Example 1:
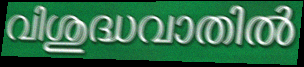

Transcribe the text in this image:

വിശുദ്ധവാതിൽ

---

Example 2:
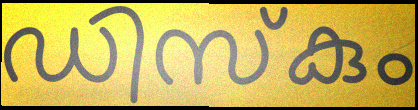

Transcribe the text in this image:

ഡിസ്കും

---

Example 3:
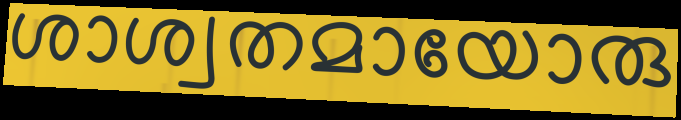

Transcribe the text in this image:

ശാശ്വതമായോരു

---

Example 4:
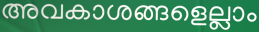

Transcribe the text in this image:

അവകാശങ്ങളെല്ലാം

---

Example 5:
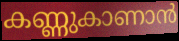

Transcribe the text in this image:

കണ്ണുകാണാൻ